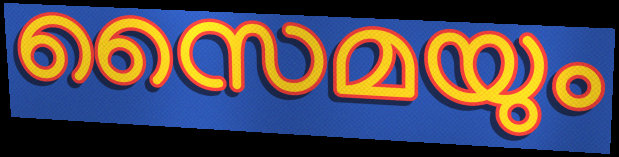
സൈമയും